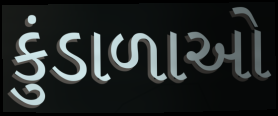
કુંડાળાઓ